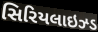
સિરિયલાઇઝ્ડ